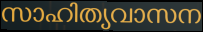
സാഹിത്യവാസന